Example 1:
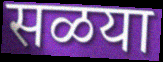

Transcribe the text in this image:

सळया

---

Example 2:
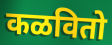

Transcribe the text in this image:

कळवितो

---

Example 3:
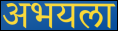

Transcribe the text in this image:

अभयला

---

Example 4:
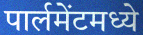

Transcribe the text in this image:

पार्लमेंटमध्ये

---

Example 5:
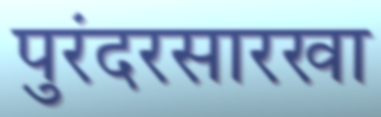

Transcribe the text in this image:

पुरंदरसारखा